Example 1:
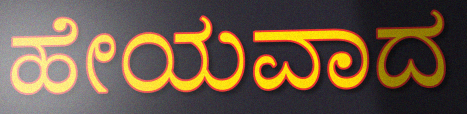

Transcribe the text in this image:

ಹೇಯವಾದ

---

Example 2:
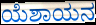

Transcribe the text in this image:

ಯೆಶಾಯನ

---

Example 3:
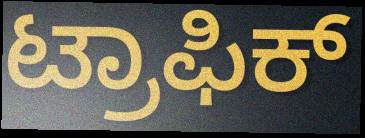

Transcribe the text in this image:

ಟ್ರಾಫಿಕ್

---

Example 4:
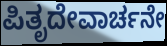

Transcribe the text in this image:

ಪಿತೃದೇವಾರ್ಚನೇ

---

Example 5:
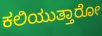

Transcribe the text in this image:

ಕಲಿಯುತ್ತಾರೋ